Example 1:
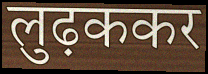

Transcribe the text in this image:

लुढ़ककर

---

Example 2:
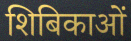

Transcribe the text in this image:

शिबिकाओं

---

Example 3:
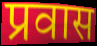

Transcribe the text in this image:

प्रवास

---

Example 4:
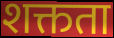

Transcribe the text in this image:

शक्तता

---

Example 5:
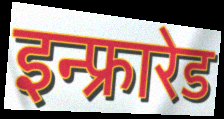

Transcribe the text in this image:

इन्फ्रारेड